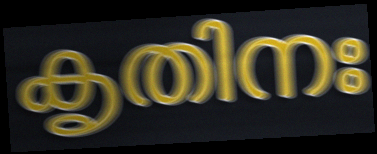
കൃതിനഃ